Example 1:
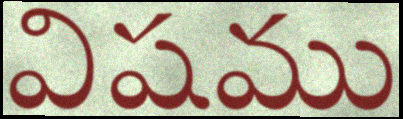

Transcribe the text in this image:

విషము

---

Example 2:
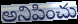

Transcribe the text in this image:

అనిపించు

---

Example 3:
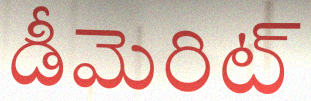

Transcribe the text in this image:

డీమెరిట్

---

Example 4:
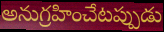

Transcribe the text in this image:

అనుగ్రహించేటప్పుడు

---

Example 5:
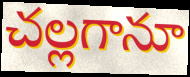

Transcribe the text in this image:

చల్లగానూ